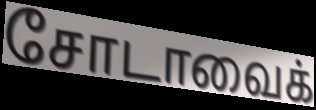
சோடாவைக்